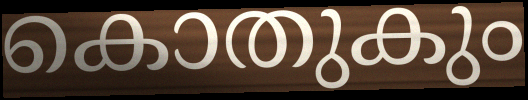
കൊതുകും